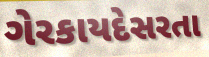
ગેરકાયદેસરતા